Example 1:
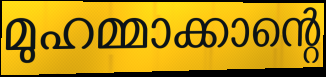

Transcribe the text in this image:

മുഹമ്മാക്കാന്റെ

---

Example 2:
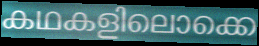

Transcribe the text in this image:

കഥകളിലൊക്കെ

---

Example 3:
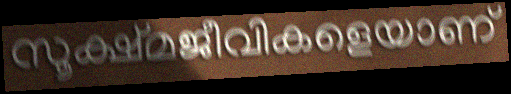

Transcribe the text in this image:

സൂക്ഷ്മജീവികളെയാണ്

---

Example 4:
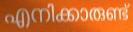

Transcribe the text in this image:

എനിക്കാരുണ്ട്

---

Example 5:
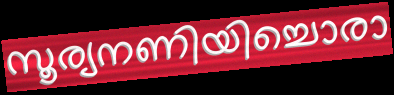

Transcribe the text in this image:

സൂര്യനണിയിച്ചൊരാ